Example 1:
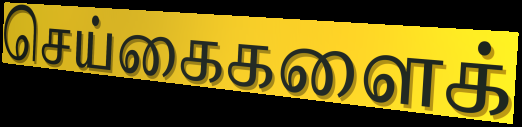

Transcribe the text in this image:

செய்கைகளைக்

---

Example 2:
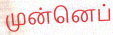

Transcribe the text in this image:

முன்னெப்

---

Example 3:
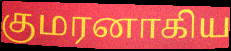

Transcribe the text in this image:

குமரனாகிய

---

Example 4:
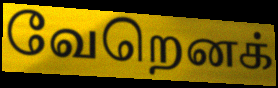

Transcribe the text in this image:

வேறெனக்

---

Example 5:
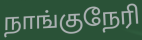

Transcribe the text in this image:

நாங்குநேரி